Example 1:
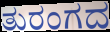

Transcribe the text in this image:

ತುರಂಗದ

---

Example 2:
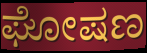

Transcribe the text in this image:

ಘೋಷಣ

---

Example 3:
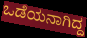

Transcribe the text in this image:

ಒಡೆಯನಾಗಿದ್ದ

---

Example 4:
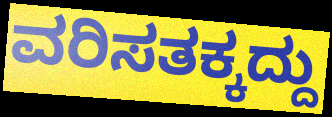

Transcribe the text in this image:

ವರಿಸತಕ್ಕದ್ದು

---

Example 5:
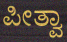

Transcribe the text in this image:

ಪೀತ್ವಾ